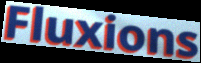
Fluxions